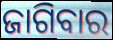
ଜାଗିବାର